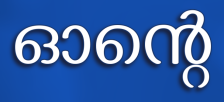
ഓന്റെ